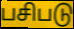
பசிபடு